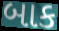
બાક